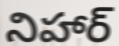
నిహార్